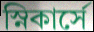
স্নিকার্সে